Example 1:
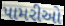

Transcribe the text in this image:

પામરીઓ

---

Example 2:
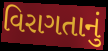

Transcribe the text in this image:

વિરાગતાનું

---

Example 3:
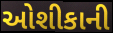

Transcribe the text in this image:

ઓશીકાની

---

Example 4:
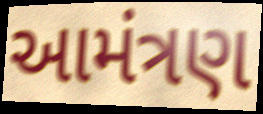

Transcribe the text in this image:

આમંત્રણ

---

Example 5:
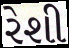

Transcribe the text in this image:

રેશી